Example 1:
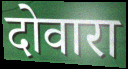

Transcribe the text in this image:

दोवारा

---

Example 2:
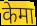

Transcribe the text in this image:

केमा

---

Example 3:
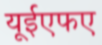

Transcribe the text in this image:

यूईएफए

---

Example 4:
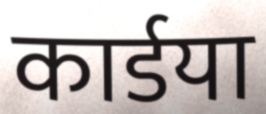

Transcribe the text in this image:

कार्डया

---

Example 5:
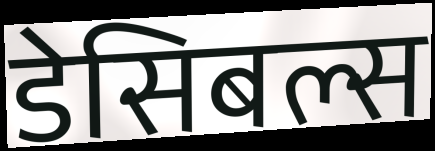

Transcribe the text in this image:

डेसिबल्स